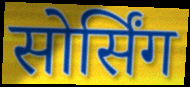
सोर्सिंग